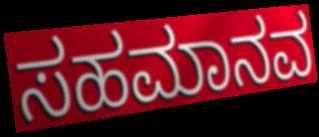
ಸಹಮಾನವ